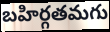
బహిర్గతమగు